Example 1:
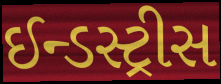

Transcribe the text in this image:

ઈન્ડસ્ટ્રીસ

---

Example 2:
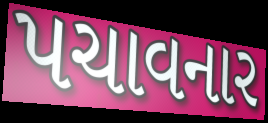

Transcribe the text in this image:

પચાવનાર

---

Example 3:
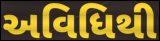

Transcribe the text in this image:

અવિધિથી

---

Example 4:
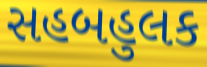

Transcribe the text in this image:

સહબહુલક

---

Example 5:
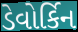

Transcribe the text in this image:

ડેવોર્કિન